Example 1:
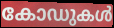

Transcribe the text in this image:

കോഡുകൾ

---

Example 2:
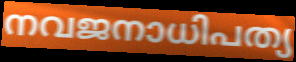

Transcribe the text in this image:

നവജനാധിപത്യ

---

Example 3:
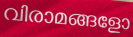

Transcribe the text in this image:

വിരാമങ്ങളോ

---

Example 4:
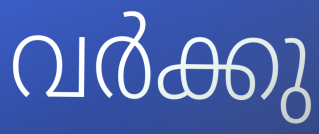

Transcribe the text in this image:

വർക്കു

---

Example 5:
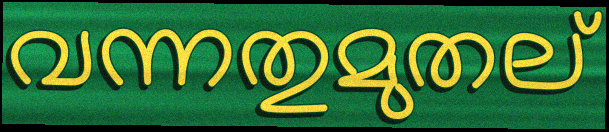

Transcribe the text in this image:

വന്നതുമുതല്